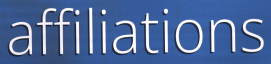
affiliations